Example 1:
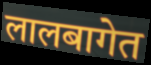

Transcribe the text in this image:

लालबागेत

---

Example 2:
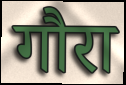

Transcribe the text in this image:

गौरा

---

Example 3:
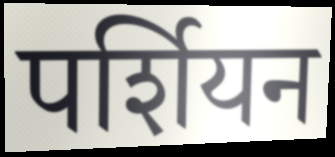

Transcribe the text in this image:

पर्शियन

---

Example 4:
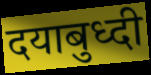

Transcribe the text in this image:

दयाबुध्दी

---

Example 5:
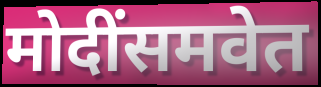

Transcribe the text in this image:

मोदींसमवेत